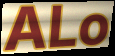
ALo